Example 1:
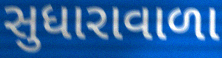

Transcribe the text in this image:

સુધારાવાળા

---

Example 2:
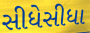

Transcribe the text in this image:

સીધેસીધા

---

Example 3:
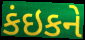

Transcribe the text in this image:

કંઇકને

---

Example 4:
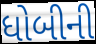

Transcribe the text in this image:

ધોબીની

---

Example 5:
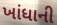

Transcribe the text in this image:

ખાંધાની